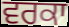
ਵਰਕਾ